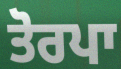
ਤੋਰਪਾ